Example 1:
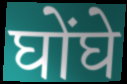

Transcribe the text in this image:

घोंघे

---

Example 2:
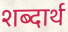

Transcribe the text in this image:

शब्दार्थ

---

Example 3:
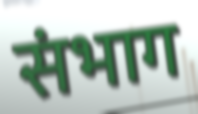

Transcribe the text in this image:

संभाग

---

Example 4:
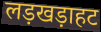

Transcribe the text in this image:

लड़खड़ाहट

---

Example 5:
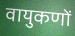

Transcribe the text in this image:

वायुकणों